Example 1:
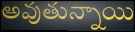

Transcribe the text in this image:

అవుతున్నాయి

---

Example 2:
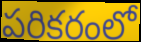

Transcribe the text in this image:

పరికరంలో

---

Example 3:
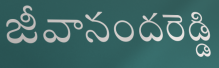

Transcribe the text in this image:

జీవానందరెడ్డి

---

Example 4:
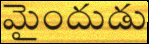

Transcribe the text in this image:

మైందుడు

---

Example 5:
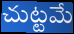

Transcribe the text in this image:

చుట్టమే